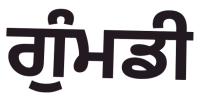
ਗੁੰਮਡੀ